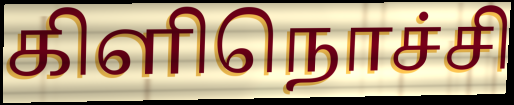
கிளிநொச்சி